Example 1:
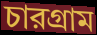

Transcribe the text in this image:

চারগ্রাম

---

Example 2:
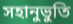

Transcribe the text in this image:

সহানুভুতি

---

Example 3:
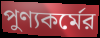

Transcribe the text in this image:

পুণ্যকর্মের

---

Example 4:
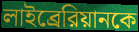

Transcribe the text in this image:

লাইব্রেরিয়ানকে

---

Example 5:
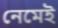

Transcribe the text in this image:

নেমেই